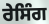
ਰੇਸਿੰਗ